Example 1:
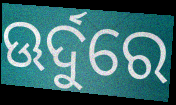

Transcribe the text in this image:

ଊର୍ଦୁରେ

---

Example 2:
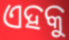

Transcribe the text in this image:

ଏହକୁ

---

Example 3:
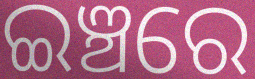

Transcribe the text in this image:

ଇଞ୍ଚରେ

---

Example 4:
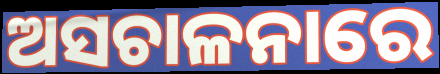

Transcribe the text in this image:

ଅସଚାଳନାରେ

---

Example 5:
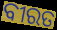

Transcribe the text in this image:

ବୀରତ